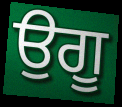
ਉਗੂ